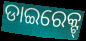
ଡାଇରେକ୍ଟ୍